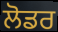
ਲੋਡਰ